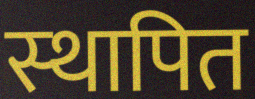
स्‍थापित